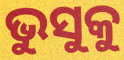
ଭୁସୁକୁ